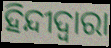
ହିନ୍ଦୀଦ୍ଵାରା